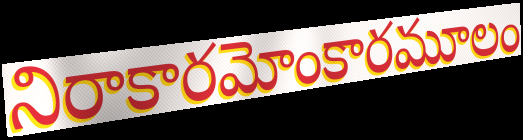
నిరాకారమోంకారమూలం